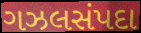
ગઝલસંપદા